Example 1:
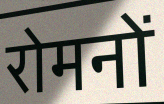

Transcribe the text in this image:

रोमनों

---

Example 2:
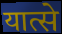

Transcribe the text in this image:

यात्से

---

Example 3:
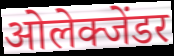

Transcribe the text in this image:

ओलेक्जेंडर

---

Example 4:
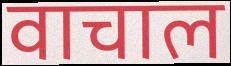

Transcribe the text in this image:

वाचाल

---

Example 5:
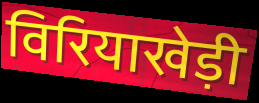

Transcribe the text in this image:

विरियाखेड़ी